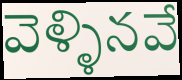
వెళ్ళినవే